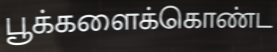
பூக்களைக்கொண்ட